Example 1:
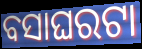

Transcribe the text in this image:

ବସାଘରଟା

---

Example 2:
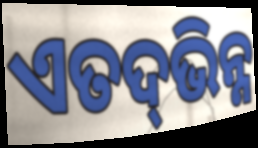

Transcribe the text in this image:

ଏତଦ୍‍ଭିନ୍ନ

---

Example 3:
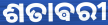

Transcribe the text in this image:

ଶତାଵରୀ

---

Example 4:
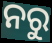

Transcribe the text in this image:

ନରୁ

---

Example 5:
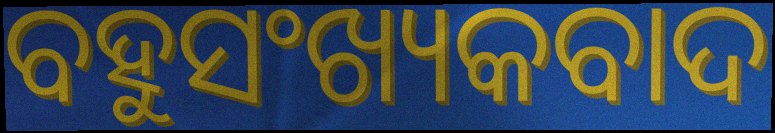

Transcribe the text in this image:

ବହୁସଂଖ୍ୟକବାଦ